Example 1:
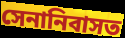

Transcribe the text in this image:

সেনানিবাসত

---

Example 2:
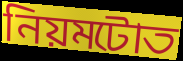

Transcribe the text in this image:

নিয়মটোত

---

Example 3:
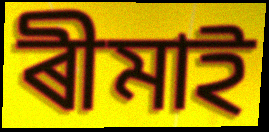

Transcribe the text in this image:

ৰীমাই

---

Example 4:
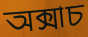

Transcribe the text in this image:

অক্সাচ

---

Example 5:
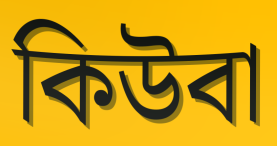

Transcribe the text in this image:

কিউবা